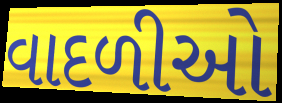
વાદળીઓ